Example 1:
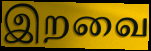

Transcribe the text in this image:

இறவை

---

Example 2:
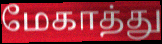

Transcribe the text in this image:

மேகாத்து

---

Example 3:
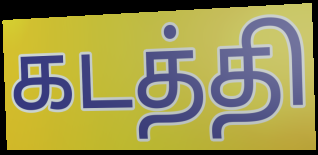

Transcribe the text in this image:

கடத்தி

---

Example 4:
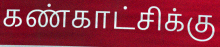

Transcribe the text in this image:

கண்காட்சிக்கு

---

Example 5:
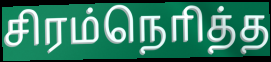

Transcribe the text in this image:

சிரம்நெரித்த